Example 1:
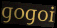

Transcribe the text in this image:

gogoi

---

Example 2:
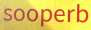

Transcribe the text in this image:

sooperb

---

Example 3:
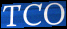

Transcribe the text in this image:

TCO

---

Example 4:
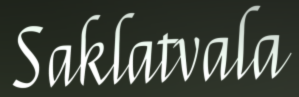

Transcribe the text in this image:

Saklatvala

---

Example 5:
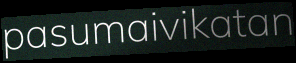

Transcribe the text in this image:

pasumaivikatan